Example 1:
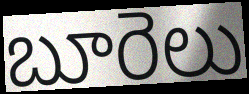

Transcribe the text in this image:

బూరెలు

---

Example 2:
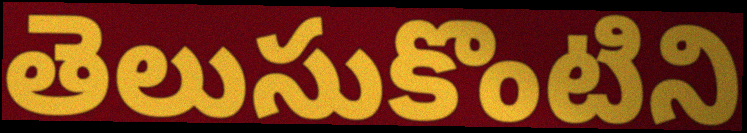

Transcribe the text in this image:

తెలుసుకొంటిని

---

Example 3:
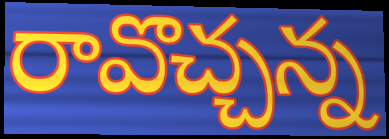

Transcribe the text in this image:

రావొచ్చన్న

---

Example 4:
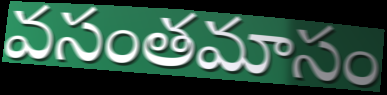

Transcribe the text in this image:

వసంతమాసం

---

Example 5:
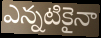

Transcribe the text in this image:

ఎన్నటికైనా